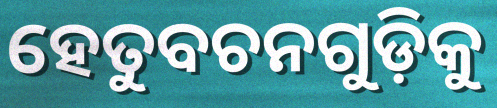
ହେତୁବଚନଗୁଡ଼ିକୁ